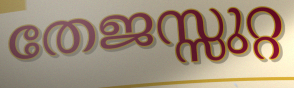
തേജസ്സുറ്റ